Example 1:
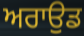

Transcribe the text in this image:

ਅਰਾਉਡ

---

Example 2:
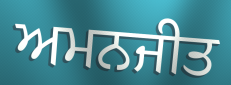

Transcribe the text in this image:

ਅਮਨਜੀਤ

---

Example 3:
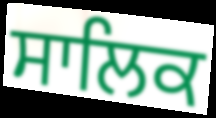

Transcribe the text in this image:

ਸਾਲਿਕ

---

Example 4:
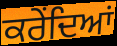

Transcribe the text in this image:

ਕਰੇਂਦਿਆਂ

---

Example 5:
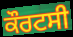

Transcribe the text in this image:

ਕੌਰਟਸੀ